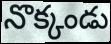
నొక్కండు